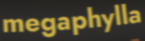
megaphylla